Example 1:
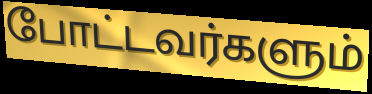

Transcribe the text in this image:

போட்டவர்களும்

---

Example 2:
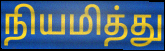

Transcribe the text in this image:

நியமித்து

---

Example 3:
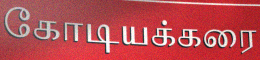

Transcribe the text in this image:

கோடியக்கரை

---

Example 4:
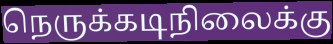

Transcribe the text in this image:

நெருக்கடிநிலைக்கு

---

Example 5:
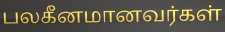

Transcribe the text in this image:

பலகீனமானவர்கள்